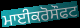
ਮਾਈਕਰੋਸੌਫਟ